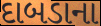
દાબડાના